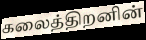
கலைத்திறனின்